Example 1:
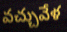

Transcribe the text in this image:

వచ్చువేళ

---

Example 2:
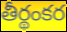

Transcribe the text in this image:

తీర్థంకర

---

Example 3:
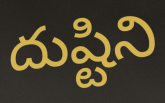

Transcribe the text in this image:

దుష్టిని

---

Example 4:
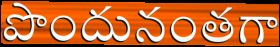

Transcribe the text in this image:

పొందునంతగా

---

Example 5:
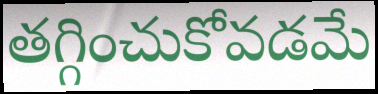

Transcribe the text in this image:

తగ్గించుకోవడమే